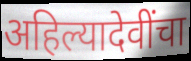
अहिल्यादेवींचा